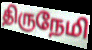
திருநேமி